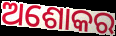
ଅଶୋକର